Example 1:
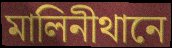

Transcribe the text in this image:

মালিনীথানে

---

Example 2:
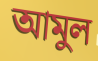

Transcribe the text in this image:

আমুল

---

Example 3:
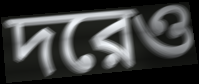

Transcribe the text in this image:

দরেও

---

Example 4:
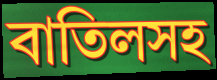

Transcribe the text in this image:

বাতিলসহ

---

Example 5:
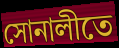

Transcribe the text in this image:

সোনালীতে